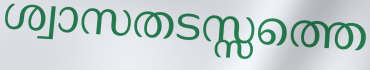
ശ്വാസതടസ്സത്തെ